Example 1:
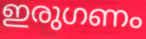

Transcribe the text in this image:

ഇരുഗണം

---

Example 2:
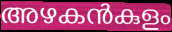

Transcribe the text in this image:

അഴകൻകുളം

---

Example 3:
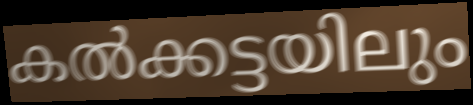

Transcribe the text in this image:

കൽക്കട്ടയിലും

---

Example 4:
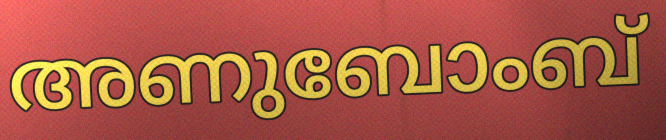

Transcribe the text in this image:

അണുബോംബ്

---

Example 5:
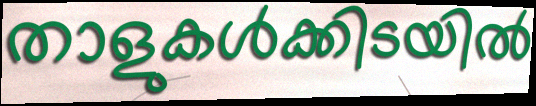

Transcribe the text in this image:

താളുകൾക്കിടയിൽ